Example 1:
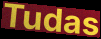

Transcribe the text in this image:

Tudas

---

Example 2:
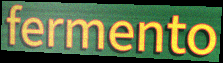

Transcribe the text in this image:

fermento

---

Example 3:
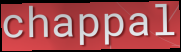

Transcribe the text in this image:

chappal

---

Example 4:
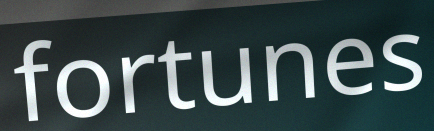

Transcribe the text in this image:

fortunes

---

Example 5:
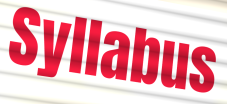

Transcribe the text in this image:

Syllabus